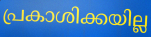
പ്രകാശിക്കയില്ല